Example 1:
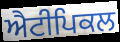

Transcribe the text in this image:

ਐਟੀਪਿਕਲ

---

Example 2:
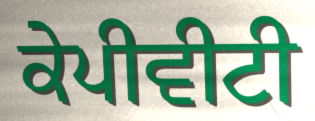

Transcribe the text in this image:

ਕੇਪੀਵੀਟੀ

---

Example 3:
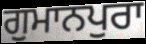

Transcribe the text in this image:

ਗੁਮਾਨਪੁਰਾ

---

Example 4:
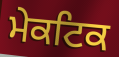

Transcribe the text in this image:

ਮੇਕਟਿਕ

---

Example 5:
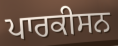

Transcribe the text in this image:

ਪਾਰਕੀਸਨ